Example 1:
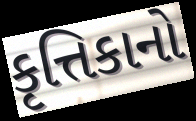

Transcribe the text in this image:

કૃત્તિકાનો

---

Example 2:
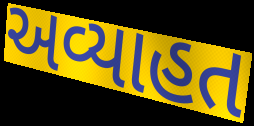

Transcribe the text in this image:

અવ્યાહત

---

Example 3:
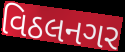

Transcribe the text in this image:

વિઠલનગર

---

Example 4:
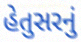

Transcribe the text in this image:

હેતુસરનું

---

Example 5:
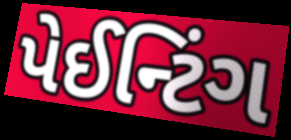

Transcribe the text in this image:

પેઈન્ટિંગ